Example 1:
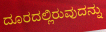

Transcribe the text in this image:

ದೂರದಲ್ಲಿರುವುದನ್ನು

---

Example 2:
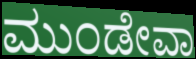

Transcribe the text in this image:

ಮುಂಡೇವಾ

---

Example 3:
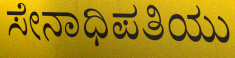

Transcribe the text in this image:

ಸೇನಾಧಿಪತಿಯು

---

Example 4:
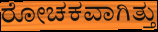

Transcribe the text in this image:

ರೋಚಕವಾಗಿತ್ತು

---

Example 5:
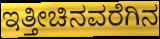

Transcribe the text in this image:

ಇತ್ತೀಚಿನವರೆಗಿನ